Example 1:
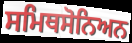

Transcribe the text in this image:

ਸਮਿਥਸੋਨਿਅਨ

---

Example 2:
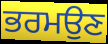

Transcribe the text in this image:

ਭਰਮਉਣ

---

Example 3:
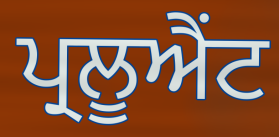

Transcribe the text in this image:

ਪ੍ਰਲੂਐਂਟ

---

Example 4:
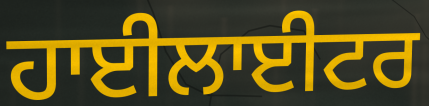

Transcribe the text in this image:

ਹਾਈਲਾਈਟਰ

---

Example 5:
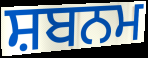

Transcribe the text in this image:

ਸ਼ਬਨਮ